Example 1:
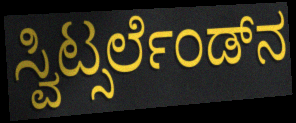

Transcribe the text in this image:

ಸ್ವಿಟ್ಸರ್ಲೆಂಡ್‌ನ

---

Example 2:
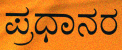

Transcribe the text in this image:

ಪ್ರಧಾನರ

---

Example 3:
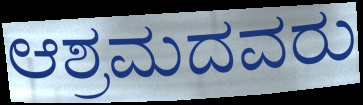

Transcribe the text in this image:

ಆಶ್ರಮದವರು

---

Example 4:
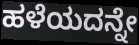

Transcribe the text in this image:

ಹಳೆಯದನ್ನೇ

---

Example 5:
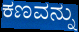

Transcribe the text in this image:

ಕಣವನ್ನು